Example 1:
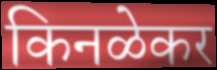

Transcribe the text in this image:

किनळेकर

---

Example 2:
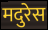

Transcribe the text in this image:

मदुरेस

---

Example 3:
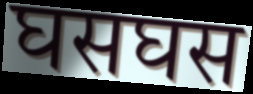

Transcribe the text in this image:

घसघस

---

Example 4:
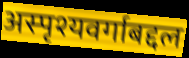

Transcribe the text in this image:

अस्पृश्यवर्गाबद्दल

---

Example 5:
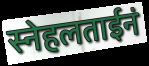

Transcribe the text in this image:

स्नेहलताईनं